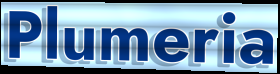
Plumeria